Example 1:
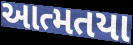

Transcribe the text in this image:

આત્મતયા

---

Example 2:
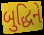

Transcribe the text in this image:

બુદ્ધિને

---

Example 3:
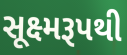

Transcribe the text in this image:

સૂક્ષ્મરૂપથી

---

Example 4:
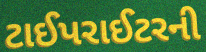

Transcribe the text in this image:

ટાઈપરાઈટરની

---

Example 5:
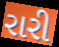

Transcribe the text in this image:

રારી